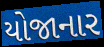
યોજાનાર